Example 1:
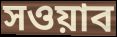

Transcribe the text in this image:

সওয়াব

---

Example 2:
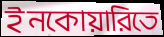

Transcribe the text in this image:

ইনকোয়ারিতে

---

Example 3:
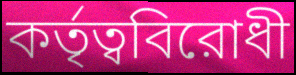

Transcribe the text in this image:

কর্তৃত্ববিরোধী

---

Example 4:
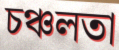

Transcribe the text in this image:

চঞ্চলতা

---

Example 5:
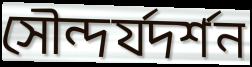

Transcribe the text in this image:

সৌন্দর্যদর্শন